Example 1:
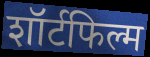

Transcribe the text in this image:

शॉर्टफिल्म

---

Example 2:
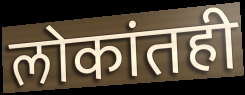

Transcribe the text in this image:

लोकांतही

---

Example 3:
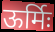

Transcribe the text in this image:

ऊर्मिः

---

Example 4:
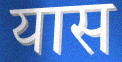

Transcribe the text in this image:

यास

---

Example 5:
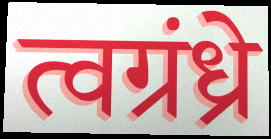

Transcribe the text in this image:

त्वग्रंध्रे